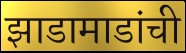
झाडामाडांची